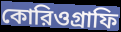
কোরিওগ্রাফি